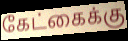
கேட்கைக்கு